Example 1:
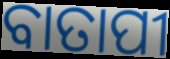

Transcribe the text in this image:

ବାତାପୀ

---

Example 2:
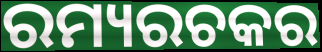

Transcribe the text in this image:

ରମ୍ୟରଚକର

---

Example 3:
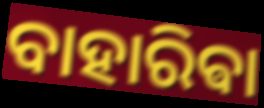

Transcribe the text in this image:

ବାହାରିଵା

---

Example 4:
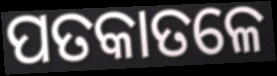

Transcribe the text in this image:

ପତକାତଳେ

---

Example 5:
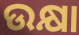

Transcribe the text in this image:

ଉକ୍ଷା